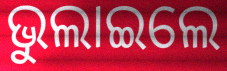
ଭୁଲାଇଲେ